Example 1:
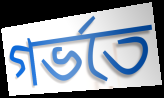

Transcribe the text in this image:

গৰ্ভতে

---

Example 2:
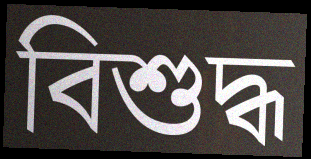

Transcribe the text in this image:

বিশুদ্ধ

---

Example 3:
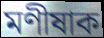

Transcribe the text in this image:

মণীষাক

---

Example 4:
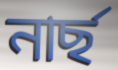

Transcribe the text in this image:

নাৰ্ছ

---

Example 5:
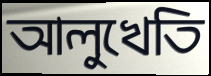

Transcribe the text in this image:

আলুখেতি